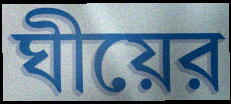
ঘীয়ের